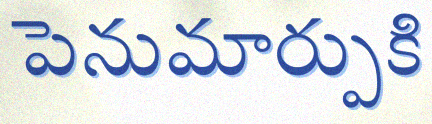
పెనుమార్పుకి